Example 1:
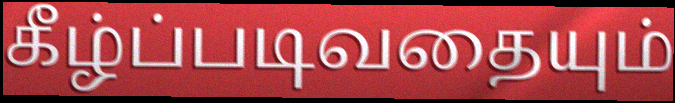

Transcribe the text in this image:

கீழ்ப்படிவதையும்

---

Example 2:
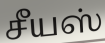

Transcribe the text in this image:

சீயஸ்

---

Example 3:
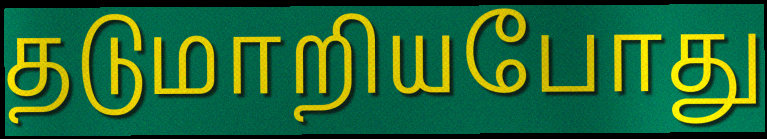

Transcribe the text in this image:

தடுமாறியபோது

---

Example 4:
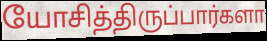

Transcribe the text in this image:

யோசித்திருப்பார்களா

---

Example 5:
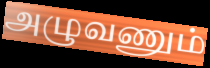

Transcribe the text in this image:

அழுவணும்